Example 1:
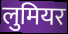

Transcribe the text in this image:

लुमियर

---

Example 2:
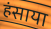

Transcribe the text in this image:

हंसाया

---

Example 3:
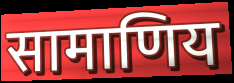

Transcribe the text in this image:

सामाणिय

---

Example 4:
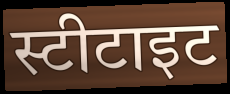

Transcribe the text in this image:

स्टीटाइट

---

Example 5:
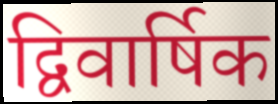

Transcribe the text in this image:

द्विवार्षिक